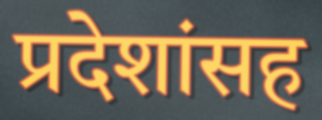
प्रदेशांसह